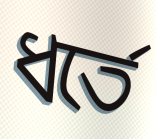
ধর্তে